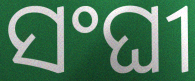
ସଂଘୀ